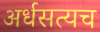
अर्धसत्यच